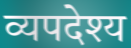
व्यपदेश्य